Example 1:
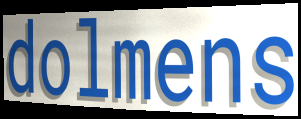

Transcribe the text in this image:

dolmens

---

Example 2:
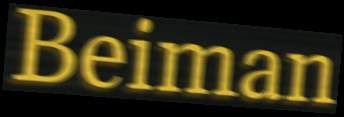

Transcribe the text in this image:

Beiman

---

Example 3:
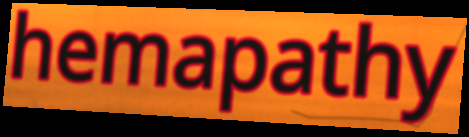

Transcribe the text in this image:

hemapathy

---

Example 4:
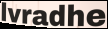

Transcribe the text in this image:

lvradhe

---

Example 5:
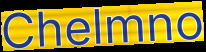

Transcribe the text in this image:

Chelmno